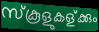
സ്കൂളുകള്ക്കും